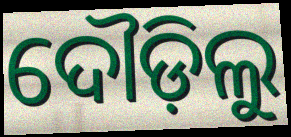
ଦୌଡ଼ିଲୁ